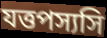
যত্তপস্যসি